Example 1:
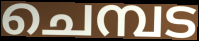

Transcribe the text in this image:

ചെമ്പട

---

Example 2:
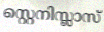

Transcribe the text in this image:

സ്റ്റെനിസ്ലാസ്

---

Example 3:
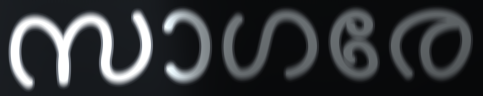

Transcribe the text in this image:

സാഗരേ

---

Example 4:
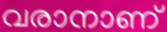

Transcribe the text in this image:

വരാനാണ്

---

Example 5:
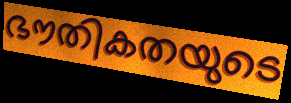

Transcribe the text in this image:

ഭൗതികതയുടെ